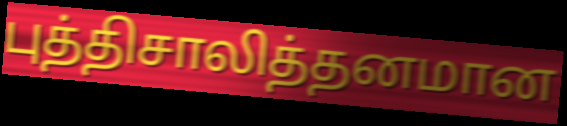
புத்திசாலித்தனமான